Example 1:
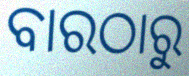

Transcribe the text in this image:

ବାରଠାରୁ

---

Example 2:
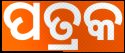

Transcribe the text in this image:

ପତ୍ରକ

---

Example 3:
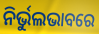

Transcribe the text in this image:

ନିର୍ଭୁଲଭାବରେ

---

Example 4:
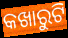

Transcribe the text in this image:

କଖାରୁଟି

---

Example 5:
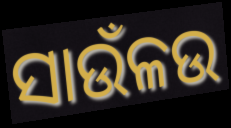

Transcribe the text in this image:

ସାଉଁଳଉ